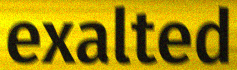
exalted